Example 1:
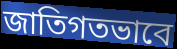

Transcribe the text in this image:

জাতিগতভাবে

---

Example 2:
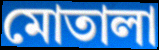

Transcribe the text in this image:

মোতালা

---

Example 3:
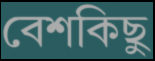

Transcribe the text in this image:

বেশকিছু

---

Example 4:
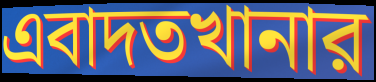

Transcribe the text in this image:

এবাদতখানার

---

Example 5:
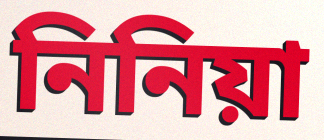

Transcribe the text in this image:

নিনিয়া